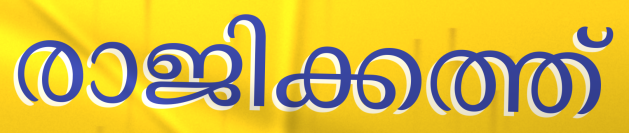
രാജിക്കത്ത്